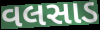
વલસાડ